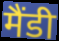
मैंडी